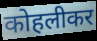
कोहलीकर